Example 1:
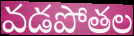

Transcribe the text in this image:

వడపోతల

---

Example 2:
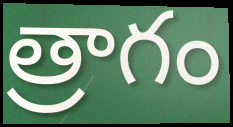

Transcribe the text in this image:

త్రాగం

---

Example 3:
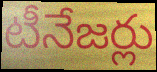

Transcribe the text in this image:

టీనేజర్లు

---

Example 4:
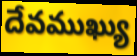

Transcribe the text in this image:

దేవముఖ్యు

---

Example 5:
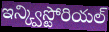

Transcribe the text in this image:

ఇన్క్విస్టోరియల్